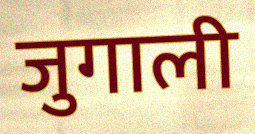
जुगाली